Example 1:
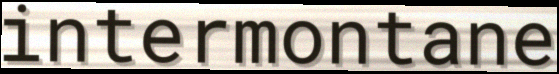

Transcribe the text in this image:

intermontane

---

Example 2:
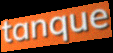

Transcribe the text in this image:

tanque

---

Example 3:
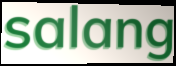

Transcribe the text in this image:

salang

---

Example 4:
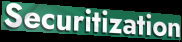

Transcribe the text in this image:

Securitization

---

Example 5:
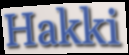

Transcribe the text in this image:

Hakki